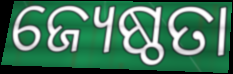
ଜ୍ୟେଷ୍ଠତା